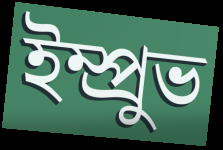
ইম্প্রুভ